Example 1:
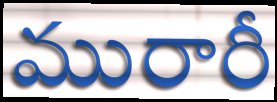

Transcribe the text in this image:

మురారీ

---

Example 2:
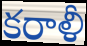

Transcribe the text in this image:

కరాళీ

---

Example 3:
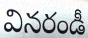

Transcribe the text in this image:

వినరండీ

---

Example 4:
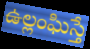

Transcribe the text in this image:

ఉల్లంఘిస్తే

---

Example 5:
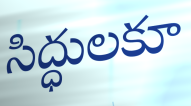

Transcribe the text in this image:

సిద్ధులకూ